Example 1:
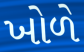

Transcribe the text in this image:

ખોળે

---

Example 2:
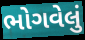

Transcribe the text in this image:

ભોગવેલું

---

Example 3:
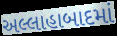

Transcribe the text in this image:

અલ્લાહાબાદમાં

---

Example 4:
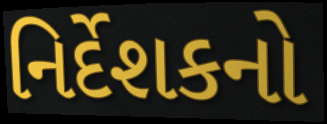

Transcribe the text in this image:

નિર્દેશકનો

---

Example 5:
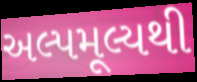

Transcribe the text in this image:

અલ્પમૂલ્યથી